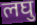
लघु